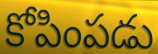
కోపింపడు